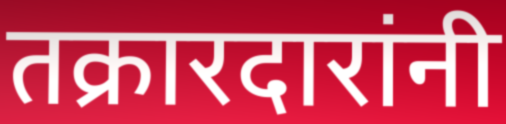
तक्रारदारांनी